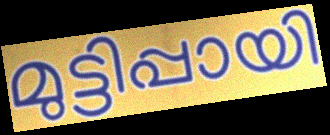
മുട്ടിപ്പായി